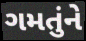
ગમતુંને